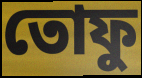
তোফু